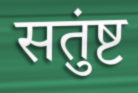
सतुंष्ट